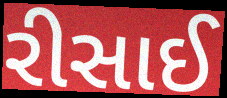
રીસાઈ